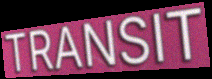
TRANSIT